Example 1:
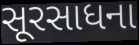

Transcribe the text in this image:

સૂરસાધના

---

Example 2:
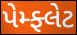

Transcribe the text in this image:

પેમ્ફ્લેટ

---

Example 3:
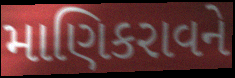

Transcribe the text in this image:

માણિકરાવને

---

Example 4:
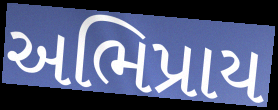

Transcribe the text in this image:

અભિપ્રાય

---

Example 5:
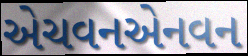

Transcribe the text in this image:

એચવનએનવન